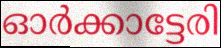
ഓർക്കാട്ടേരി